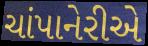
ચાંપાનેરીએ